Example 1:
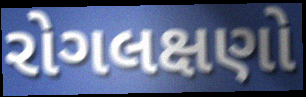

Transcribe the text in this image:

રોગલક્ષણો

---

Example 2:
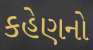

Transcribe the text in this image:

કહેણનો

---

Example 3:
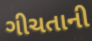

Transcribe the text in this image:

ગીચતાની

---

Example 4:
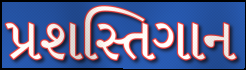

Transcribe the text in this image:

પ્રશસ્તિગાન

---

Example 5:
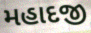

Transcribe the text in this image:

મહાદજી